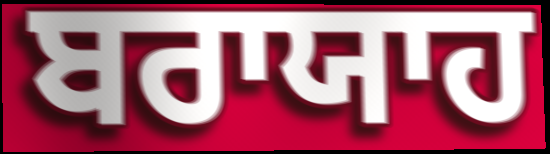
ਬਰਾਯਾਹ